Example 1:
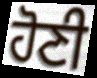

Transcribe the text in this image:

ਹੋਣੀ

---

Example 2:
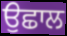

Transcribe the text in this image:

ਉਛਾਲ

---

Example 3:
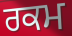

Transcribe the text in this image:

ਰਕਮ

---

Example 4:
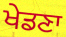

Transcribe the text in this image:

ਖੇਡਣਾ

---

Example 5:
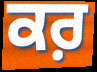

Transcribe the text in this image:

ਕਰ਼